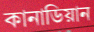
কানাডিয়ান